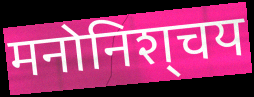
मनोनिश्चय